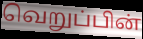
வெறுப்பின்